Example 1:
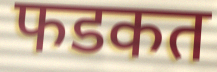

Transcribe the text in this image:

फडकत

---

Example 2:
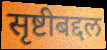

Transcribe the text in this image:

सृष्टीबद्दल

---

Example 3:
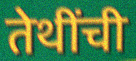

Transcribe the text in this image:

तेथींची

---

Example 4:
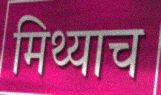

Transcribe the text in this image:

मिथ्याच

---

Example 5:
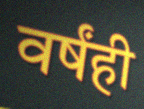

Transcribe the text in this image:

वर्षंही